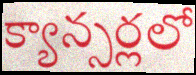
క్యాన్సర్లలో